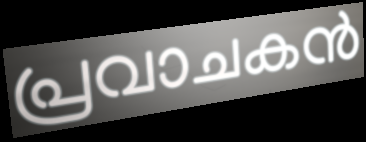
പ്രവാചകൻ